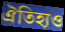
ঐতিহ্যও